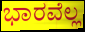
ಭಾರವೆಲ್ಲ